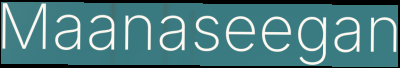
Maanaseegan